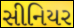
સીનિયર